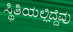
ಸ್ಥಿತಿಯಲ್ಲಿದ್ದೆವು